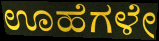
ಊಹೆಗಳೇ